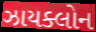
ઝાયક્લોન